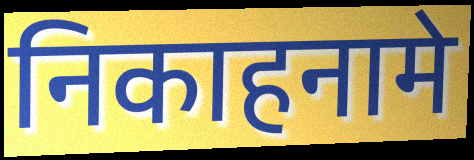
निकाहनामे